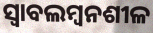
ସ୍ୱାବଲମ୍ୱନଶୀଳ